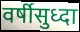
वर्षीसुध्दा